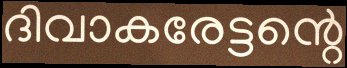
ദിവാകരേട്ടന്റെ